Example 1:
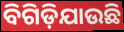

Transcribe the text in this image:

ବିଗିଡ଼ିଯାଉଛି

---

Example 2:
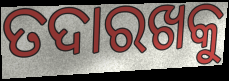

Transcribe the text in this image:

ତଦାରଖକୁ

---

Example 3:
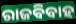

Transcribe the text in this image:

ରାଜବିବାହ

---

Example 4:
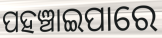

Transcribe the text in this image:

ପହଞ୍ଚାଇପାରେ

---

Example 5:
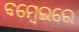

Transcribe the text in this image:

ବମ୍ବେଇରେ